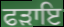
ਫੜਾਇ